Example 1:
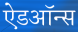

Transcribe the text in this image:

ऐडऑन्स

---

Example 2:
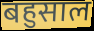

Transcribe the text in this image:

बहुसाल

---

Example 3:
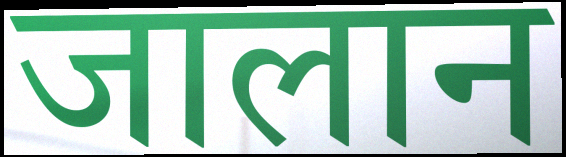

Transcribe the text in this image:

जालान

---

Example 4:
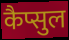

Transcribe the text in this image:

कैप्सुल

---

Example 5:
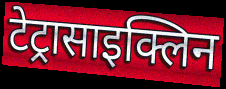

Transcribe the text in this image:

टेट्रासाइक्लिन